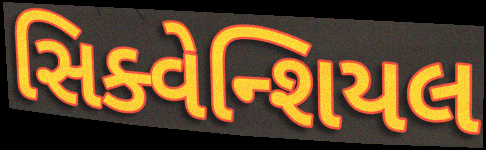
સિક્વેન્શિયલ